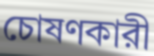
চোষণকারী